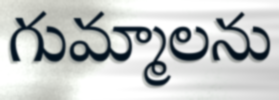
గుమ్మాలను